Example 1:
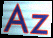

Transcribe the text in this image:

Az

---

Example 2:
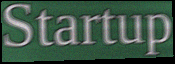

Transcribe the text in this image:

Startup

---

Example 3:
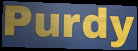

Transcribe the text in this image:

Purdy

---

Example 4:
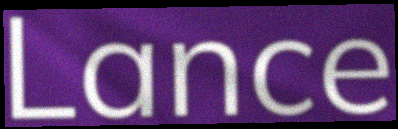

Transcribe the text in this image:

Lance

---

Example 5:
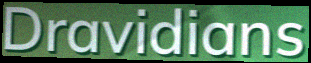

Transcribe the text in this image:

Dravidians